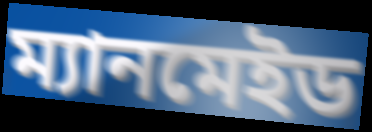
ম্যানমেইড